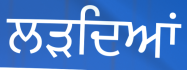
ਲੜਦਿਆਂ